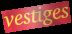
vestiges